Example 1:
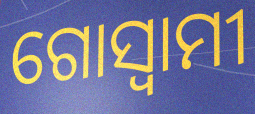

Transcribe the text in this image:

ଗୋସ୍ଵାମୀ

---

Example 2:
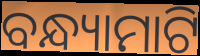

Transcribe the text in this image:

ବନ୍ଧ୍ୟାମାଟି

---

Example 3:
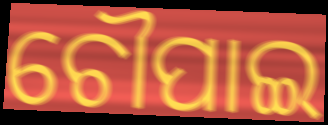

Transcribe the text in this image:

ଚୌପାଇ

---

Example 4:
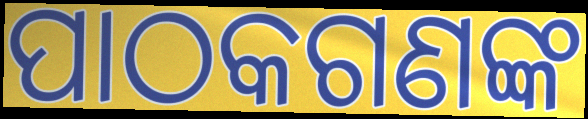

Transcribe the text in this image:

ପାଠକଗଣଙ୍କ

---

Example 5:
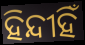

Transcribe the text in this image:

ହିନ୍ଦୀହିଁ